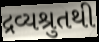
દ્રવ્યશ્રુતથી